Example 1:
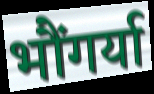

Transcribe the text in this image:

भौंगर्या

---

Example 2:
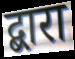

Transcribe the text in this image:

द्बारा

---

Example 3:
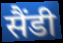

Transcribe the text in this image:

सैंडी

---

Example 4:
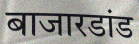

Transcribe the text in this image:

बाजारडांड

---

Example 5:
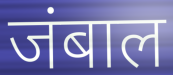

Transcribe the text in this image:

जंबाल